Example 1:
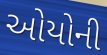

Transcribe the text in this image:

ઓયોની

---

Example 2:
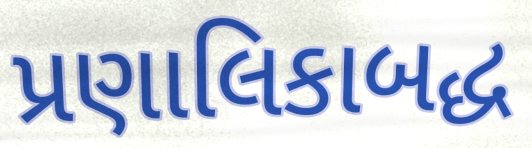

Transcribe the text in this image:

પ્રણાલિકાબદ્ધ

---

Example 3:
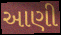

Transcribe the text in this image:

આણી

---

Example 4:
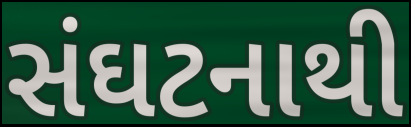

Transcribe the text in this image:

સંઘટનાથી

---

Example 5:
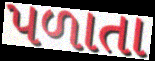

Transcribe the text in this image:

પળાતા